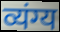
व्‍यंग्‍य